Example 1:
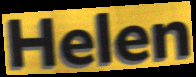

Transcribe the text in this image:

Helen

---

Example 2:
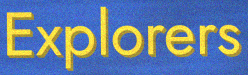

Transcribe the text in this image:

Explorers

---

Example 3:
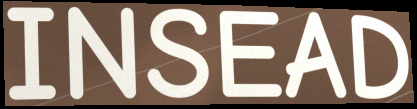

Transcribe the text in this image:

INSEAD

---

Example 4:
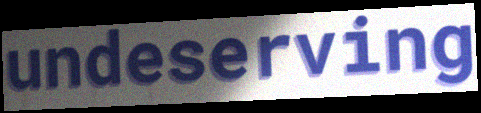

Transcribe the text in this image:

undeserving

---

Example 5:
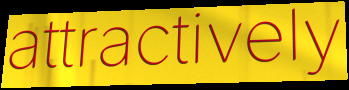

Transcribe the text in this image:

attractively